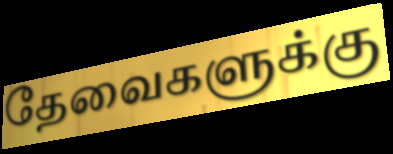
தேவைகளுக்கு